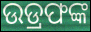
ଉଡ୍ରଫଙ୍କ